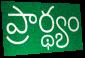
ప్రార్థ్యం